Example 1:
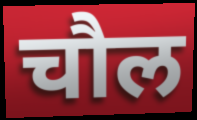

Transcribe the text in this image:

चौल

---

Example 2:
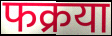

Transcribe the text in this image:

फक्रया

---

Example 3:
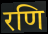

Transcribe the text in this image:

रणि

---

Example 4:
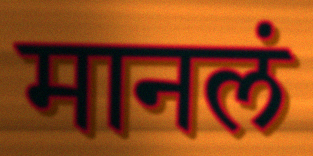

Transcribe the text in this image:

मानलं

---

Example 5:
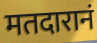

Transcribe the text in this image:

मतदारानं